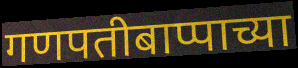
गणपतीबाप्पाच्या